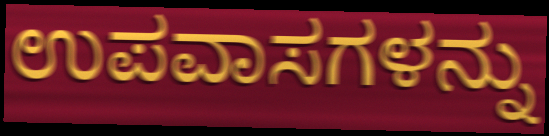
ಉಪವಾಸಗಳನ್ನು